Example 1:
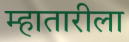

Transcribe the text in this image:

म्हातारीला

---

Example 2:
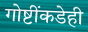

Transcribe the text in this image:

गोष्टींकडेही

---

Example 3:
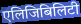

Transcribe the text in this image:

एलिजिबिलिटी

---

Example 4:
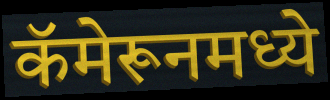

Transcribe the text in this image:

कॅमेरूनमध्ये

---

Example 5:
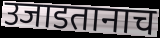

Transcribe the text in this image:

उजाडतानाच